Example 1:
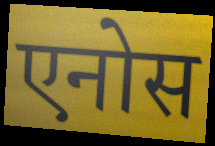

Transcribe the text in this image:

एनोस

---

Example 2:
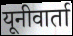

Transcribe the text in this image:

यूनीवार्ता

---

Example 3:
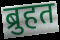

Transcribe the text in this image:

ब्रुहत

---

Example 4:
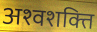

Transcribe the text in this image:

अश्वशक्ति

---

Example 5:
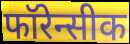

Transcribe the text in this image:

फॉरेन्सीक